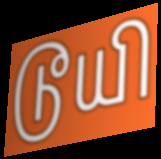
டூயி